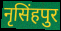
नृसिंहपुर